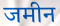
जमीन